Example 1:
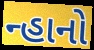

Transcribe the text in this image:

ન્હાનો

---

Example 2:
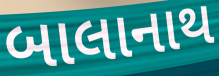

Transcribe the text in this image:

બાલાનાથ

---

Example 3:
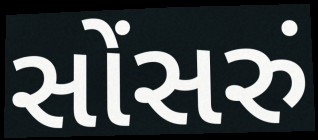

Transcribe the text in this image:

સોંસરું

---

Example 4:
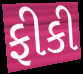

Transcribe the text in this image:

ફીકી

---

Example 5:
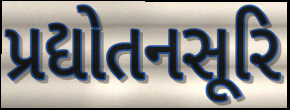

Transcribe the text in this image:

પ્રદ્યોતનસૂરિ